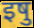
इषु